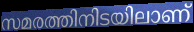
സമരത്തിനിടയിലാണ്